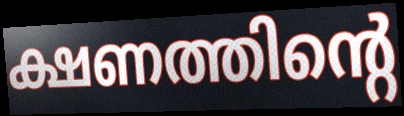
ക്ഷണത്തിന്റെ